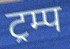
ट्रम्‍प